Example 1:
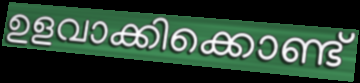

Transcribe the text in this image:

ഉളവാക്കിക്കൊണ്ട്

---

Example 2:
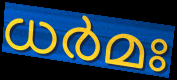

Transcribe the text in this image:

ധർമഃ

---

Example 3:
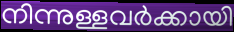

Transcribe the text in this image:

നിന്നുള്ളവർക്കായി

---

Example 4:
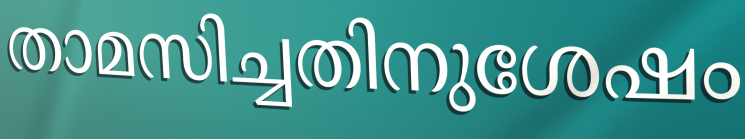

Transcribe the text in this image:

താമസിച്ചതിനുശേഷം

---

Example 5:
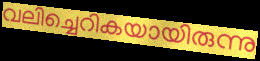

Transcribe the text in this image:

വലിച്ചെറികയായിരുന്നു